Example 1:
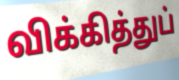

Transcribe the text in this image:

விக்கித்துப்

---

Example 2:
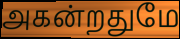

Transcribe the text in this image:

அகன்றதுமே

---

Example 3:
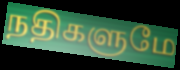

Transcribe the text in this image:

நதிகளுமே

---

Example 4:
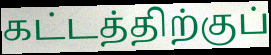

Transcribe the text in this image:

கட்டத்திற்குப்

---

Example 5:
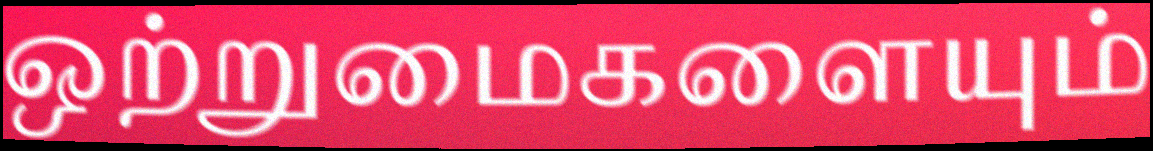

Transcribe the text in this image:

ஒற்றுமைகளையும்